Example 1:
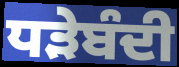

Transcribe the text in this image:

ਧੜੇਬੰਦੀ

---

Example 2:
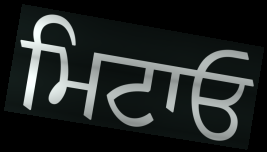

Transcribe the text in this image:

ਮਿਟਾਓ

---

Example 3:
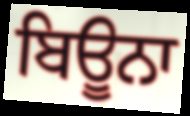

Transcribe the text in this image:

ਬਿਊਨਾ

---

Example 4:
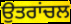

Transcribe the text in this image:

ਉਤਰਾਂਚਲ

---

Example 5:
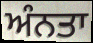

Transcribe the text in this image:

ਅੰਨਤਾ